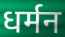
धर्मन